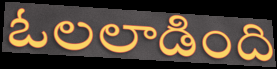
ఓలలాడింది